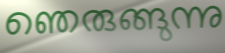
ഞെരുങ്ങുന്നു